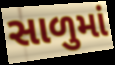
સાળુમાં